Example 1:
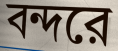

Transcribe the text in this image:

বন্দরে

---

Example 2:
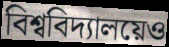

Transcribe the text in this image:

বিশ্ববিদ্যালয়েও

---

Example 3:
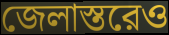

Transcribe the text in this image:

জেলাস্তরেও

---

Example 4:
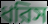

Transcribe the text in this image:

ধরিস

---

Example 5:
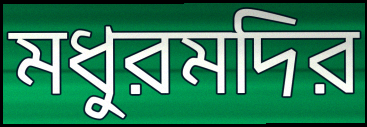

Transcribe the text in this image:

মধুরমদির